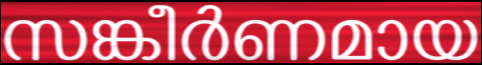
സങ്കീർണമായ